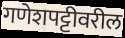
गणेशपट्टीवरील